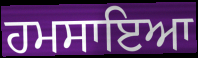
ਹਮਸਾਇਆ